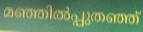
മഞ്ഞിൽപ്പുതഞ്ഞ്